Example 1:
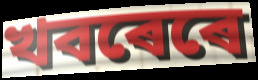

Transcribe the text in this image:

খবৰেৰে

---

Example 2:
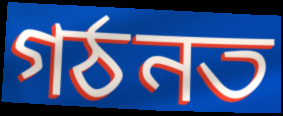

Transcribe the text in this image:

গঠনত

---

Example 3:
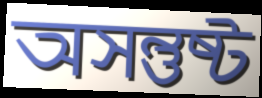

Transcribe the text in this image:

অসন্তুষ্ট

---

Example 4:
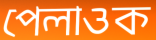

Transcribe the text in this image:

পেলাওক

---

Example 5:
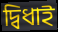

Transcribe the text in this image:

দ্বিধাই